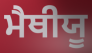
ਮੈਥੀਯੂ